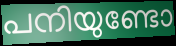
പനിയുണ്ടോ